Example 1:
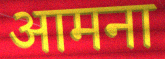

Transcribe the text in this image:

आमना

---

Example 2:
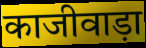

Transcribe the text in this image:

काजीवाड़ा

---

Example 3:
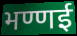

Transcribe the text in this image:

भण्णई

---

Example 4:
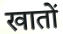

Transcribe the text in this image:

खातों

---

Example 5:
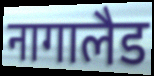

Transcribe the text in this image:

नागालैड